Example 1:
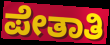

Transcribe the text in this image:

ಪೇತಾತಿ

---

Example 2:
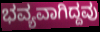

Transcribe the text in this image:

ಭವ್ಯವಾಗಿದ್ದವು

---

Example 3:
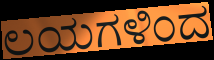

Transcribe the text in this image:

ಲಯಗಳಿಂದ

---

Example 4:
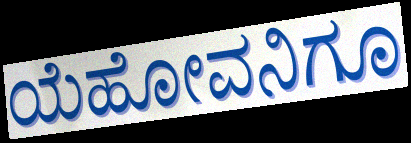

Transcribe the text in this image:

ಯೆಹೋವನಿಗೂ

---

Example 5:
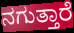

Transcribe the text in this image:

ನಗುತ್ತಾರೆ